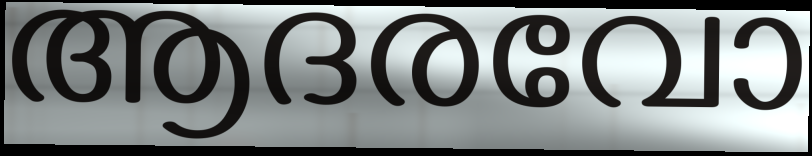
ആദരവോ